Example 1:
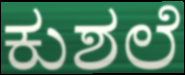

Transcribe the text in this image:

ಕುಶಲೆ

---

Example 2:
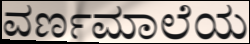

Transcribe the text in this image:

ವರ್ಣಮಾಲೆಯ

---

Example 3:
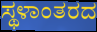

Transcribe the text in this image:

ಸ್ಥಳಾಂತರದ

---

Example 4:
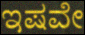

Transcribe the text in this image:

ಇಷವೇ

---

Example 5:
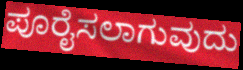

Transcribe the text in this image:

ಪೂರೈಸಲಾಗುವುದು